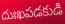
దుఃఖపడకుడి